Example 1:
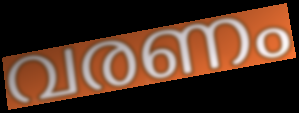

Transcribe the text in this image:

വരണം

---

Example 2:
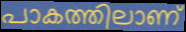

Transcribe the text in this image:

പാകത്തിലാണ്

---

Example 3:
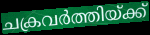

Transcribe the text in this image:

ചക്രവർത്തിയ്ക്ക്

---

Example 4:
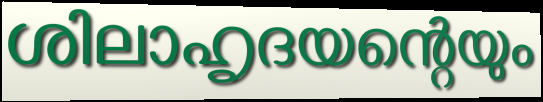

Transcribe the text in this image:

ശിലാഹൃദയന്റെയും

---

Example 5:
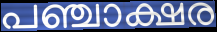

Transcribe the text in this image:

പഞ്ചാക്ഷര